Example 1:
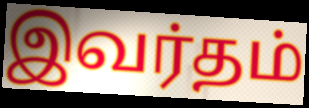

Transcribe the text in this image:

இவர்தம்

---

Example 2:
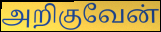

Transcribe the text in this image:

அறிகுவேன்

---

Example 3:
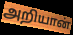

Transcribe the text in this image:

அறியான்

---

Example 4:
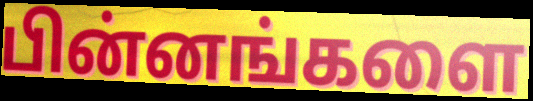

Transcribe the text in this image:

பின்னங்களை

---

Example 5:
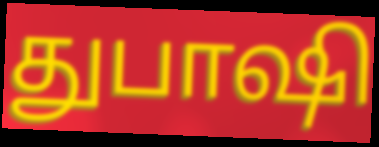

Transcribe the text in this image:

துபாஷி